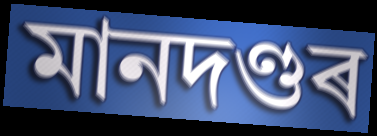
মানদণ্ডৰ